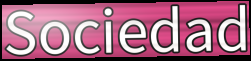
Sociedad